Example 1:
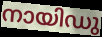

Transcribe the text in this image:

നായിഡു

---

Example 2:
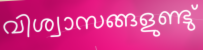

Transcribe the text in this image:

വിശ്വാസങ്ങളുണ്ടു്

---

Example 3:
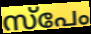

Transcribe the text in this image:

സ്പേം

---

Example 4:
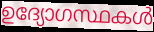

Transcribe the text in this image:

ഉദ്യോഗസ്ഥകൾ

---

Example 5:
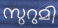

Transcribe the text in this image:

സുറുമി